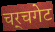
चर्चगेट